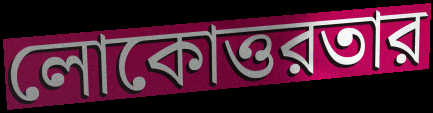
লোকোত্তরতার